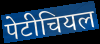
पेटीचियल